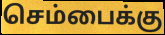
செம்பைக்கு